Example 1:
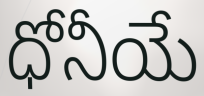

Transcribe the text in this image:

ధోనీయే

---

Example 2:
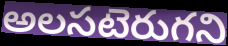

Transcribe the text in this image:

అలసటెరుగని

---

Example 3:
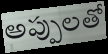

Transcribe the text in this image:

అప్పులతో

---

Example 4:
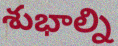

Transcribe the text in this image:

శుభాల్ని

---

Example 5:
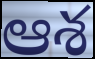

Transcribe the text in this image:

ఆశ